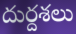
దుర్దశలు